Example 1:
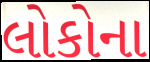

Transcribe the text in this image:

લોકોના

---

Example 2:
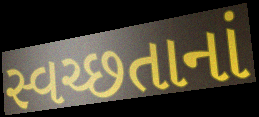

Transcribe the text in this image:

સ્વચ્છતાનાં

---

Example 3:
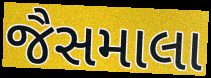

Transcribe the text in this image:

જૈસમાલા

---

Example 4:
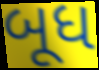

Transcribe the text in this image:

બૂધ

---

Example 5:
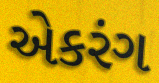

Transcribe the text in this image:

એકરંગ